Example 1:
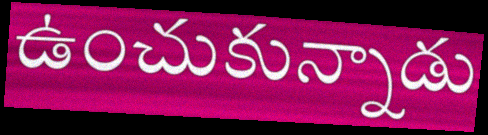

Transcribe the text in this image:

ఉంచుకున్నాడు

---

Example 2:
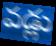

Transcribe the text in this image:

వడ్లు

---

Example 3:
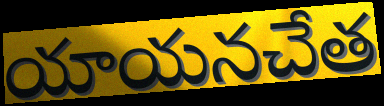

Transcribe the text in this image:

యాయనచేత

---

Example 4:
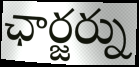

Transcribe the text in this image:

ఛార్జర్ను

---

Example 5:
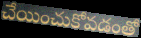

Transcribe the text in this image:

చేయించుకోవడంతో